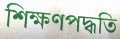
শিক্ষণপদ্ধতি